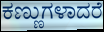
ಕಣ್ಣುಗಳಾದರೆ